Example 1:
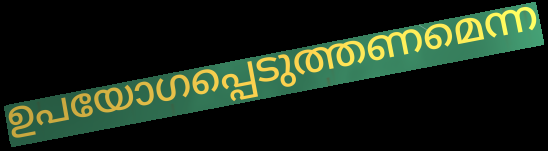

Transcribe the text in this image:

ഉപയോഗപ്പെടുത്തണമെന്ന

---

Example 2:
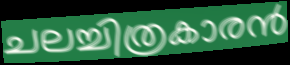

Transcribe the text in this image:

ചലച്ചിത്രകാരൻ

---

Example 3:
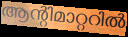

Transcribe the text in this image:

ആന്റിമാറ്ററിൽ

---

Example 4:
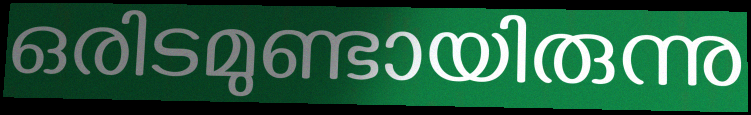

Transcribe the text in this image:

ഒരിടമുണ്ടായിരുന്നു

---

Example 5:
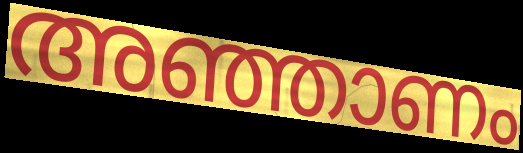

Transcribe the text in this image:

അഞ്ഞാണം